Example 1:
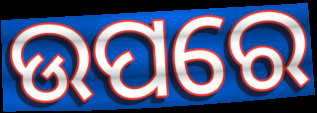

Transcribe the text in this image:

ଉପରେ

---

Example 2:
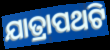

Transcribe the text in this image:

ଯାତ୍ରାପଥଟି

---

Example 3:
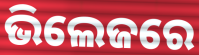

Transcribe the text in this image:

ଭିଲେଜରେ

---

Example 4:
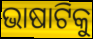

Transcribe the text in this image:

ଭାଷାଟିକୁ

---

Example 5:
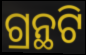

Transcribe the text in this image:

ଗ୍ରନ୍ଥଟି